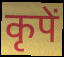
कृपें